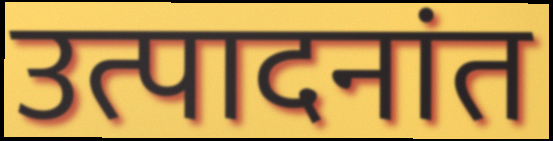
उत्पादनांत